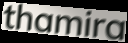
thamira